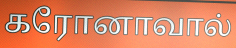
கரோனாவால்